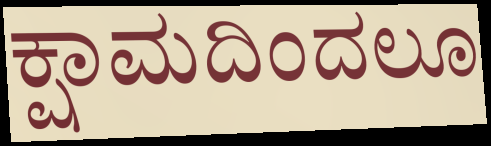
ಕ್ಷಾಮದಿಂದಲೂ